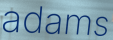
adams